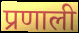
प्रणाली